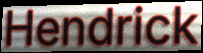
Hendrick